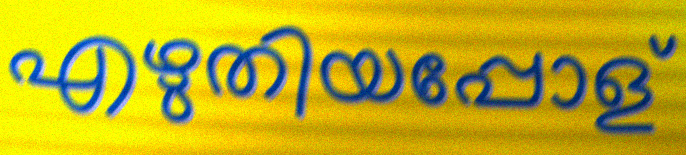
എഴുതിയപ്പോള്